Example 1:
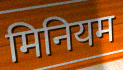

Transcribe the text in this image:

मिनियम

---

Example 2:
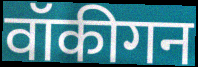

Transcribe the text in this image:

वॉकीगन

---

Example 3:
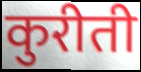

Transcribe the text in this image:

कुरीती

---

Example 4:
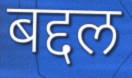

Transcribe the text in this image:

बद्दल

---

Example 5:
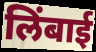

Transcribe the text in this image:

लिंबाई